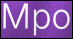
Mpo